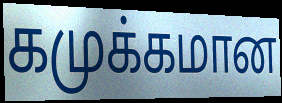
கமுக்கமான